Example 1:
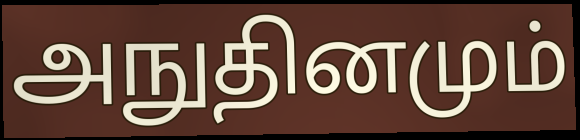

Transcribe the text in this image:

அநுதினமும்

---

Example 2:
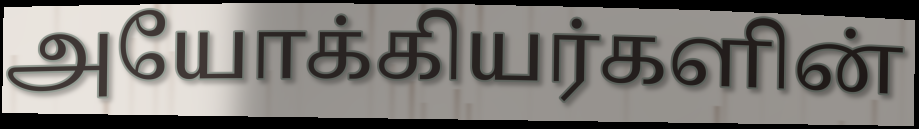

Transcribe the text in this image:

அயோக்கியர்களின்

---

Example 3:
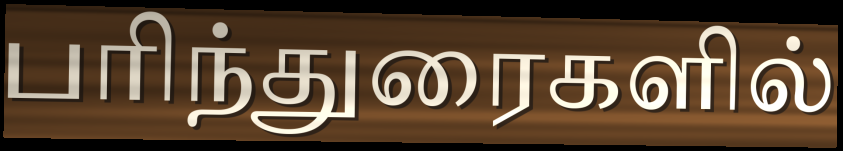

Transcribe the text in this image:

பரிந்துரைகளில்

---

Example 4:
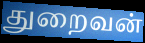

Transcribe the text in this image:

துறைவன்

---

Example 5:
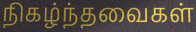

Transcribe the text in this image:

நிகழ்ந்தவைகள்